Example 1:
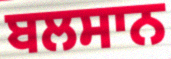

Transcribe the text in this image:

ਬਲਸਾਨ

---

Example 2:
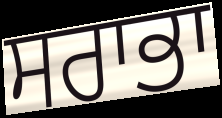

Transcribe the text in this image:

ਸਰਾਭਾ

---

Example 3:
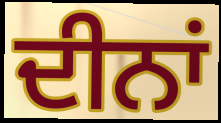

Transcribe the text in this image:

ਦੀਨਾਂ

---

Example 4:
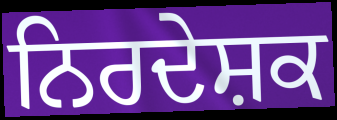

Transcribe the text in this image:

ਨਿਰਦੇਸ਼ਕ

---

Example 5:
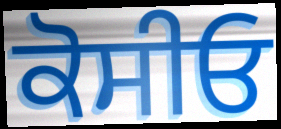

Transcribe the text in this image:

ਕੋਸੀਓ